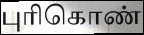
புரிகொண்